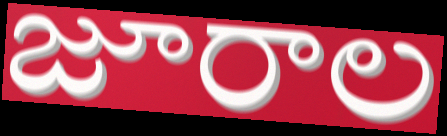
జూరాల